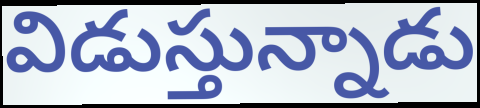
విడుస్తున్నాడు